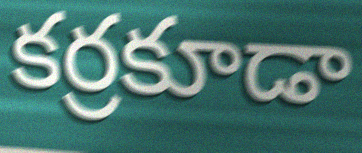
కర్రకూడా